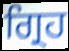
ਗ੍ਰਿਹ